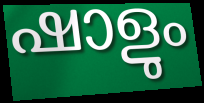
ഷാളും